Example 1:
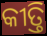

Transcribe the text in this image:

କୀତ୍ତି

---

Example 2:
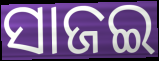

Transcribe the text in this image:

ସାଜଇ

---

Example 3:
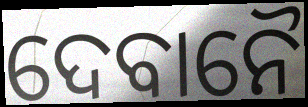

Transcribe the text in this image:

ଦେବାନୈ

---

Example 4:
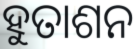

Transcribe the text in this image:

ହୁତାଶନ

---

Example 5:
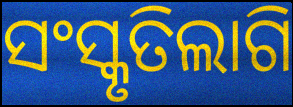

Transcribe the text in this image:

ସଂସ୍କୃତିଲାଗି